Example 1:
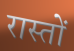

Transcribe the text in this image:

रास्तों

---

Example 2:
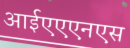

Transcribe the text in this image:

आईएएएनएस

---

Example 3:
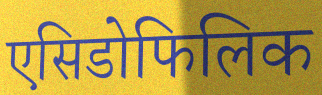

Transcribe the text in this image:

एसिडोफिलिक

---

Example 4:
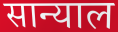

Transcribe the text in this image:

सान्याल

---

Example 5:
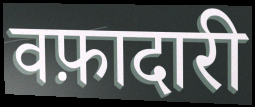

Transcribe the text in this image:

वफ़ादारी